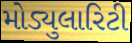
મોડ્યુલારિટી